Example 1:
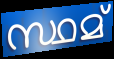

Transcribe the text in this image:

സ്ഥമ്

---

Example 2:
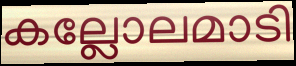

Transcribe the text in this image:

കല്ലോലമാടി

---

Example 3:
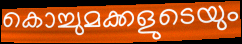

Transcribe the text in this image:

കൊച്ചുമക്കളുടെയും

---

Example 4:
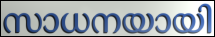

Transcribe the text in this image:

സാധനയായി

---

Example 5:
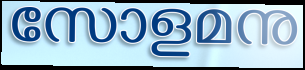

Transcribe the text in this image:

സോളമനു